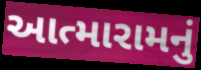
આત્મારામનું